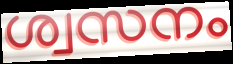
ശ്വസനം